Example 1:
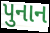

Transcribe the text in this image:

પુનાન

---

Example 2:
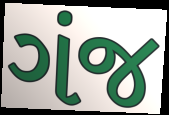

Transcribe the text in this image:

ગંજ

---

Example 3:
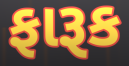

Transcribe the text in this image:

ફારૂક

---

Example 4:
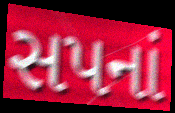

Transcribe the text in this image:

સપનાં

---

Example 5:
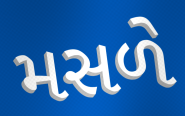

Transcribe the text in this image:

મસળે